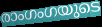
രാംഗംഗയുടെ